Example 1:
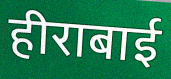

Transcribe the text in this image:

हीराबाई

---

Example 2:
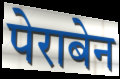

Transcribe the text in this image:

पेराबेन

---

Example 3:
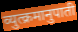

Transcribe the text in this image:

व्युत्क्रमानुपाती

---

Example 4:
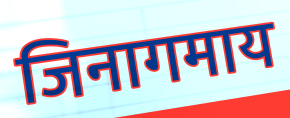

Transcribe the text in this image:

जिनागमाय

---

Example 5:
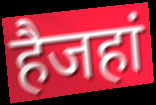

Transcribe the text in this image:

हैजहां